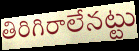
తిరిగిరాలేనట్టు